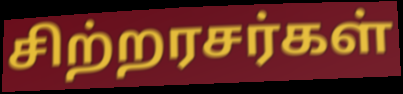
சிற்றரசர்கள்